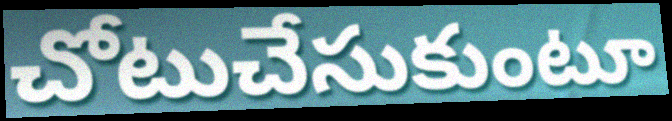
చోటుచేసుకుంటూ